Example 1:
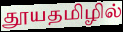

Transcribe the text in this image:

தூயதமிழில்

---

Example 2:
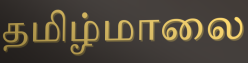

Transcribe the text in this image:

தமிழ்மாலை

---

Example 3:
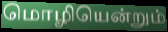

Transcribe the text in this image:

மொழியென்றும்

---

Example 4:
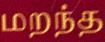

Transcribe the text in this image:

மறந்த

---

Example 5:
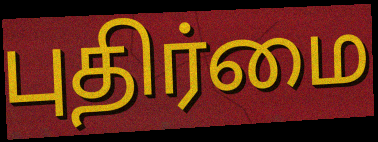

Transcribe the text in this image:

புதிர்மை